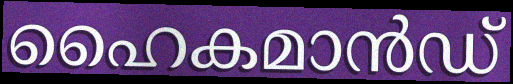
ഹൈകമാൻഡ്